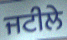
ਜਟੀਲੇ